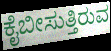
ಕೈಬೀಸುತ್ತಿರುವ